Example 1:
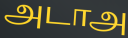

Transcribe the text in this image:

அடாஅ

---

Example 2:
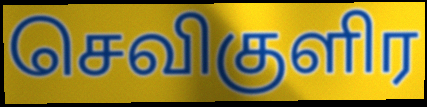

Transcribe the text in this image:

செவிகுளிர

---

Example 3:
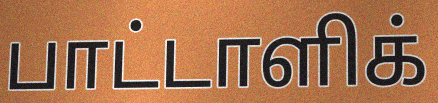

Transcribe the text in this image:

பாட்டாளிக்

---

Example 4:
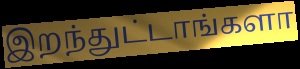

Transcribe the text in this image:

இறந்துட்டாங்களா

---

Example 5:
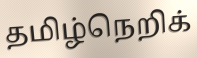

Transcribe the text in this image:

தமிழ்நெறிக்